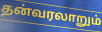
தன்வரலாறும்